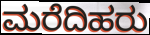
ಮರೆದಿಹರು